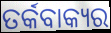
ତର୍କବାକ୍ୟର